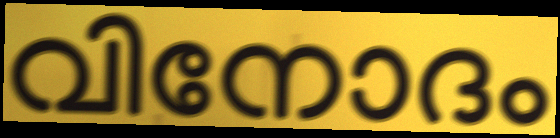
വിനോദം